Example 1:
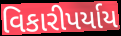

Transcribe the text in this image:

વિકારીપર્યાય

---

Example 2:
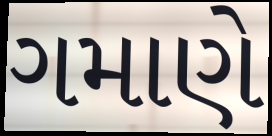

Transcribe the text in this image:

ગમાણે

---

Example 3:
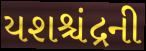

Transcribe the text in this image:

યશશ્ચંદ્રની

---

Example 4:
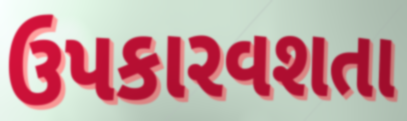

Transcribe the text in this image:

ઉપકારવશતા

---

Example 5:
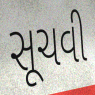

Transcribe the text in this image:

સૂચવી